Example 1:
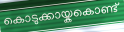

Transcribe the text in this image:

കൊടുക്കായ്കകൊണ്ട്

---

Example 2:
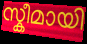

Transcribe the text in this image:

സ്കീമായി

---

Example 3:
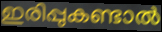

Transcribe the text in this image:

ഇരിപ്പുകണ്ടാൽ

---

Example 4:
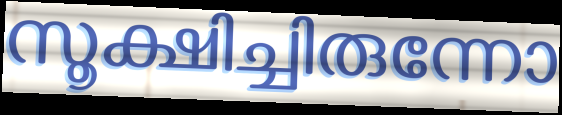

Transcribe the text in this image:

സൂക്ഷിച്ചിരുന്നോ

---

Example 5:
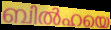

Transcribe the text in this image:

ബിൽഹയെ